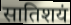
सातिशयं